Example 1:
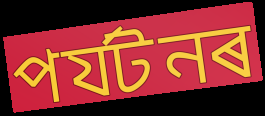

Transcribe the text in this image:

পৰ্যটনৰ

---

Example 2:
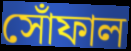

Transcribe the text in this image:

সোঁফাল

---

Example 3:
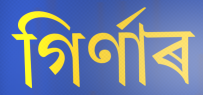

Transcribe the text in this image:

গিৰ্ণাৰ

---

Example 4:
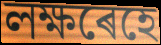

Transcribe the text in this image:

লক্ষৰেহে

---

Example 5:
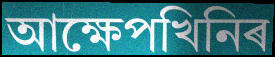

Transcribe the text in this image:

আক্ষেপখিনিৰ